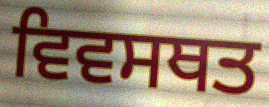
ਵਿਵਸਥਤ